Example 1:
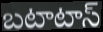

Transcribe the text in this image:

బటాటాస్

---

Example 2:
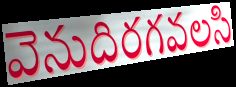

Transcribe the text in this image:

వెనుదిరగవలసి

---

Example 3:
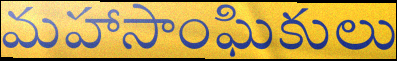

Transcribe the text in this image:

మహాసాంఘికులు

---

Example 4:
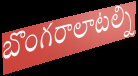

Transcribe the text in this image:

బొంగరాలాటల్ని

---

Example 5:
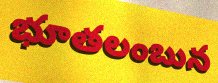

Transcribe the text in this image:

భూతలంబున